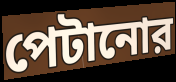
পেটানোর